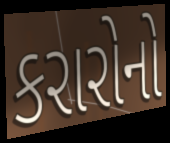
કરારોનો